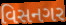
વિસનગર